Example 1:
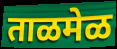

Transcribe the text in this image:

ताळमेळ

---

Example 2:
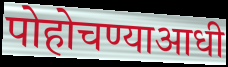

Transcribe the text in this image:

पोहोचण्याआधी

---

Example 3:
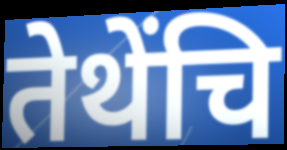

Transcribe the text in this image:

तेथेंचि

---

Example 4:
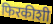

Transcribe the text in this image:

फिरकीशी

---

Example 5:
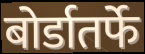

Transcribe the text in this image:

बोर्डातर्फे